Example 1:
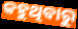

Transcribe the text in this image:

କହୁଥିବାରୁ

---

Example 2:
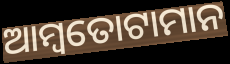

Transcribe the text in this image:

ଆମ୍ବତୋଟାମାନ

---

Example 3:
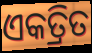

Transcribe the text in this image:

ଏକତ୍ରିତ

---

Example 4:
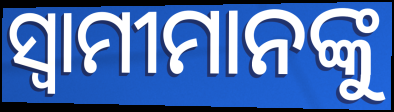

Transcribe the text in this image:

ସ୍ବାମୀମାନଙ୍କୁ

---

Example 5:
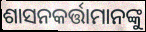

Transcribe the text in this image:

ଶାସନକର୍ତ୍ତାମାନଙ୍କୁ